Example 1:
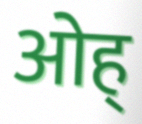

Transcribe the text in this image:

ओह्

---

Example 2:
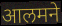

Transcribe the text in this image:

आलमने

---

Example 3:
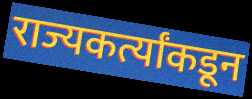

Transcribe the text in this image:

राज्यकर्त्यांकडून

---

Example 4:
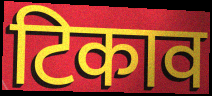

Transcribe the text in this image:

टिकाव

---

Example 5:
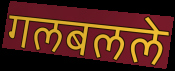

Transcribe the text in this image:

गलबलले